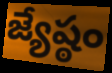
జ్యేష్ఠం